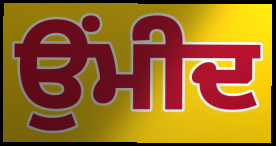
ਉਂਮੀਦ